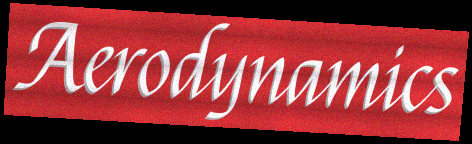
Aerodynamics